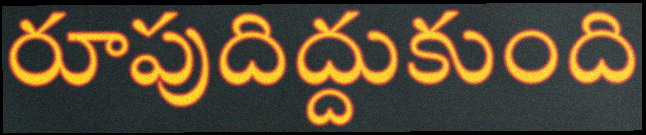
రూపుదిద్దుకుంది